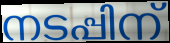
നടപ്പിന്